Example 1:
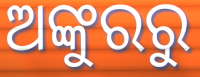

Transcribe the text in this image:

ଅଙ୍କୁରରୁ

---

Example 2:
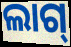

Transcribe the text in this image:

ଲାଗ୍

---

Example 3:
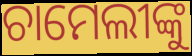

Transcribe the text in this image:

ଚାମେଲୀଙ୍କୁ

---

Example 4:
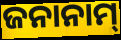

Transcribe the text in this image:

ଜନାନାମ୍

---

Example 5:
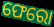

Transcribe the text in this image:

ଫେରୋ